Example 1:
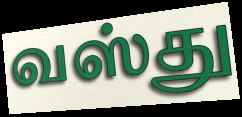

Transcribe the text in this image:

வஸ்து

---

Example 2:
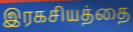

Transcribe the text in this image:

இரகசியத்தை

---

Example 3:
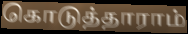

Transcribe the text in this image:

கொடுத்தாராம்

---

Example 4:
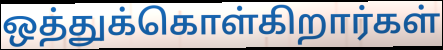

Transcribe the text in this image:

ஒத்துக்கொள்கிறார்கள்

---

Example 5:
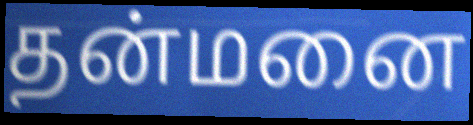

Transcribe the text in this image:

தன்மனை